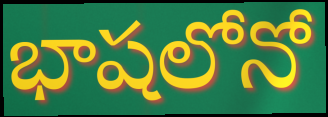
భాషలోనో